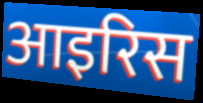
आइरिस